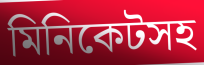
মিনিকেটসহ